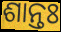
ଶାନ୍ତଃ